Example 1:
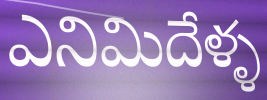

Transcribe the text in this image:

ఎనిమిదేళ్ళ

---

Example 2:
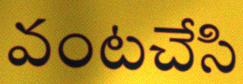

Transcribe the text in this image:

వంటచేసి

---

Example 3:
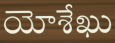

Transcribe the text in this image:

యోశేఖు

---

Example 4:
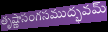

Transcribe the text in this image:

తృష్ణాసంగసముద్భవమ్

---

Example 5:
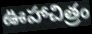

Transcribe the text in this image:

ఊహాచిత్రం